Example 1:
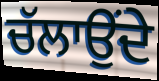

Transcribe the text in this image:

ਚੱਲਾਉਂਦੇ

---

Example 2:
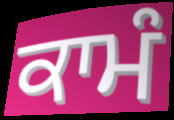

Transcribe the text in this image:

ਕਾਮੰ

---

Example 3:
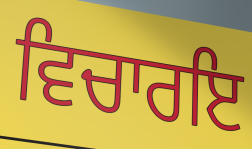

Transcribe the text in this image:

ਵਿਚਾਰਇ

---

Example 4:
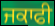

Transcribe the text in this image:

ਜਕਾਫੀ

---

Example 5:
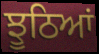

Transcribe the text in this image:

ਝੂਠਿਆਂ